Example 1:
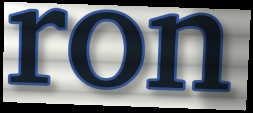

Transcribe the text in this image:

ron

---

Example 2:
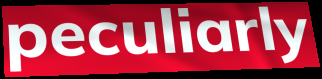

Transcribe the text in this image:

peculiarly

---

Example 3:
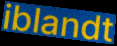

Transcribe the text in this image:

iblandt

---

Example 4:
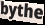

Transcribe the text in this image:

bythe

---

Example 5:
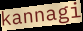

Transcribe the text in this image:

kannagi